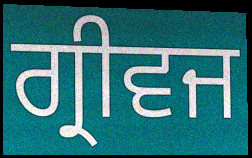
ਗ੍ਰੀਵਜ